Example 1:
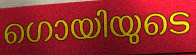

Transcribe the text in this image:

ഗൊയിയുടെ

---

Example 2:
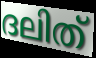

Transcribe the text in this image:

ദലിത്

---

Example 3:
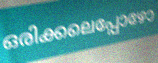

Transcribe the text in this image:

ഒരിക്കലെപ്പോഴോ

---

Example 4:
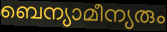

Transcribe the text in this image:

ബെന്യാമീന്യരും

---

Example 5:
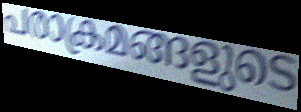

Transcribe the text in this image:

പരാക്രമങ്ങളുടെ